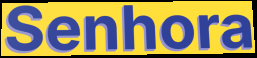
Senhora